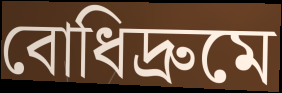
বোধিদ্রুমে